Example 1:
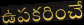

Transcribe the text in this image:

ఉపకరించే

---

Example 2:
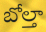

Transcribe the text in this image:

బోల్తా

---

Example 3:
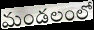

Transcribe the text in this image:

మండలంలో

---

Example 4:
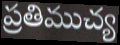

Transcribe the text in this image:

ప్రతిముచ్య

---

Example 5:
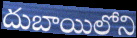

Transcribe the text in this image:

దుబాయిలోని